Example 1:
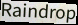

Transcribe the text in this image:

Raindrop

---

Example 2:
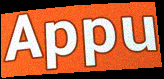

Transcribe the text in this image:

Appu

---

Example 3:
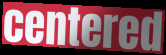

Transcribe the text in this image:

centered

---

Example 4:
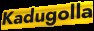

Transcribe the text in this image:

Kadugolla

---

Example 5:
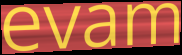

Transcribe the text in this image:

evam